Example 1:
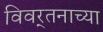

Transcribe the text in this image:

विवर्तनाच्या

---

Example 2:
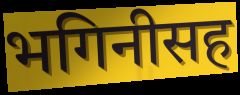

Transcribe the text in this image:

भगिनीसह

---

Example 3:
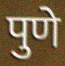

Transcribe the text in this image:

पुणे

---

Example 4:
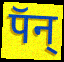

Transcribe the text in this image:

पॅन्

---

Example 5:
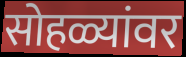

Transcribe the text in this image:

सोहळ्यांवर